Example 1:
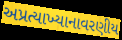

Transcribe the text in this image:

અપ્રત્યાખ્યાનાવરણીય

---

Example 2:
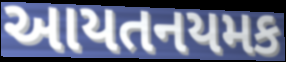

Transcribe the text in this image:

આયતનયમક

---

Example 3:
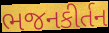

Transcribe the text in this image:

ભજનકીર્તન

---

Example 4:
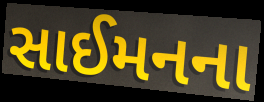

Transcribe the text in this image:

સાઈમનના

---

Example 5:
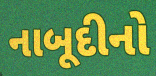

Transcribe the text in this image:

નાબૂદીનો